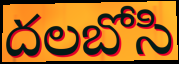
దలబోసి